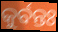
କୁର୍ବନ୍ତଃ